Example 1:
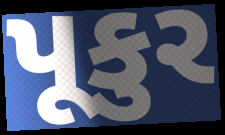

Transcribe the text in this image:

પૂકુર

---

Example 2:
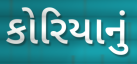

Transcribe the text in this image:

કોરિયાનું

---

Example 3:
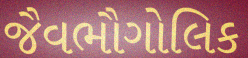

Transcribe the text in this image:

જૈવભૌગોલિક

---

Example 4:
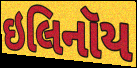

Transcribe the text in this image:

ઇલિનૉય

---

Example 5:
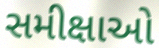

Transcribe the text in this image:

સમીક્ષાઓ